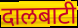
दालबाटी